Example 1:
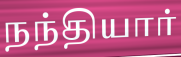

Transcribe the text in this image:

நந்தியார்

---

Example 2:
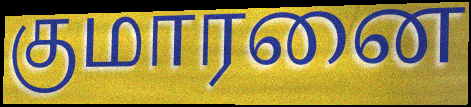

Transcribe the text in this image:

குமாரனை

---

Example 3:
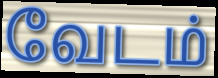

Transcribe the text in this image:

வேடம்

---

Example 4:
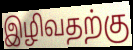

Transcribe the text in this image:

இழிவதற்கு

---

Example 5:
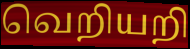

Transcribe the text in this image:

வெறியறி